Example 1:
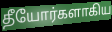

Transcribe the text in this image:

தீயோர்களாகிய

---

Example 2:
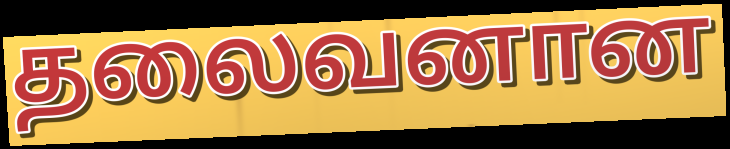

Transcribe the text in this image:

தலைவனான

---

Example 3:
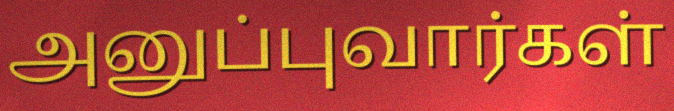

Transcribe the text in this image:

அனுப்புவார்கள்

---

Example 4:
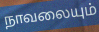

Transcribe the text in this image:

நாவலையும்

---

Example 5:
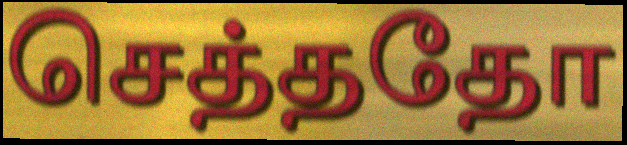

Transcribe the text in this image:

செத்ததோ